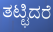
ತಟ್ಟಿದರೆ